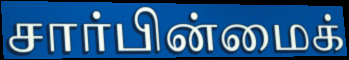
சார்பின்மைக்